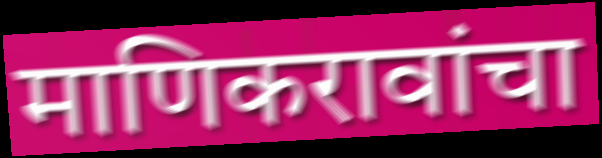
माणिकरावांचा